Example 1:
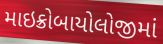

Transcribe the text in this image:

માઇક્રોબાયોલોજીમાં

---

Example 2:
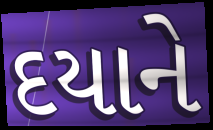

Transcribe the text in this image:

દયાને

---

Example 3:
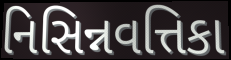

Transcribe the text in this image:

નિસિન્નવત્તિકા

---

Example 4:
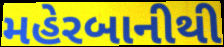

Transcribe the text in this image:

મહેરબાનીથી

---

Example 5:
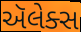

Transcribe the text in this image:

ઍલેક્સ